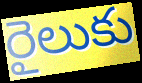
రైలుకు